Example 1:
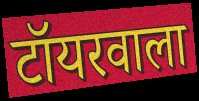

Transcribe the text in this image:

टॉयरवाला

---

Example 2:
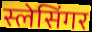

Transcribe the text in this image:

स्लेसिंगर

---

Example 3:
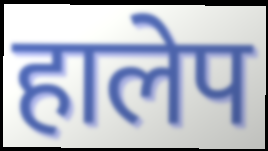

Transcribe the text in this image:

हालेप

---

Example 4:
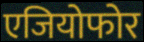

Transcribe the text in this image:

एजियोफोर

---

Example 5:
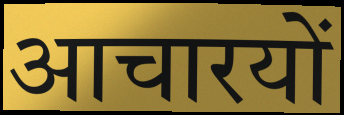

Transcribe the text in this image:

आचारयों